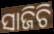
ସାଜିଚି